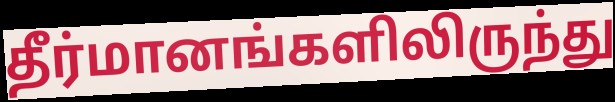
தீர்மானங்களிலிருந்து